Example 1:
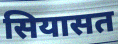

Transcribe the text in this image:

सियासत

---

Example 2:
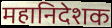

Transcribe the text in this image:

महानिदेशक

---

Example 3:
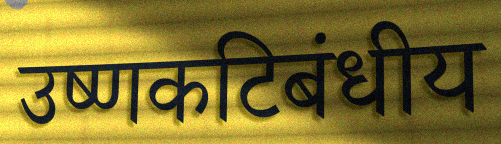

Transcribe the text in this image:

उष्णकटिबंधीय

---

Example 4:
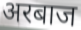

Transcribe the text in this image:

अरबाज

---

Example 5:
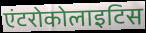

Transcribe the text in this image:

एंटरोकोलाइटिस